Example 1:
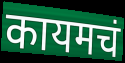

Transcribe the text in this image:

कायमचं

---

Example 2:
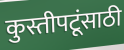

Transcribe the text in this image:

कुस्तीपटूंसाठी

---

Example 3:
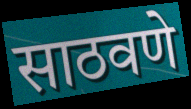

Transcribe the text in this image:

साठवणे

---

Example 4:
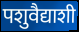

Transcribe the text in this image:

पशुवैद्याशी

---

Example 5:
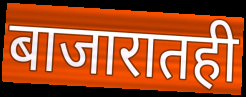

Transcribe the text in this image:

बाजारातही